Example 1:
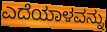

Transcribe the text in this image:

ಎದೆಯಾಳವನ್ನು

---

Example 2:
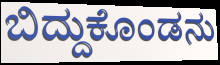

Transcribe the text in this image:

ಬಿದ್ದುಕೊಂಡನು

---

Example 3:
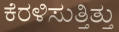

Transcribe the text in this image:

ಕೆರಳಿಸುತ್ತಿತ್ತು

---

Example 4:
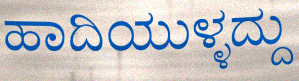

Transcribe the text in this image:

ಹಾದಿಯುಳ್ಳದ್ದು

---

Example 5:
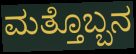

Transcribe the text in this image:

ಮತ್ತೊಬ್ಬನ